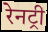
रेनट्री